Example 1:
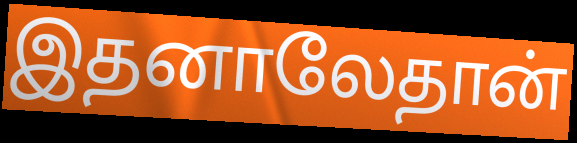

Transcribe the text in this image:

இதனாலேதான்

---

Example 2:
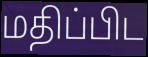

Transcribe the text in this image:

மதிப்பிட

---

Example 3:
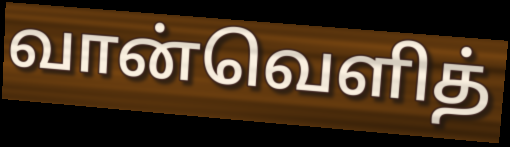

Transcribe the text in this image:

வான்வெளித்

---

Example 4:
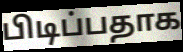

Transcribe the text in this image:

பிடிப்பதாக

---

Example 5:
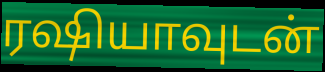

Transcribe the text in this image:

ரஷியாவுடன்